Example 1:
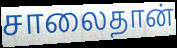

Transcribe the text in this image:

சாலைதான்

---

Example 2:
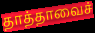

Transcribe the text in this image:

தாத்தாவைச்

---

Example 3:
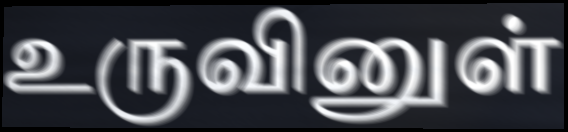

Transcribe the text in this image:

உருவினுள்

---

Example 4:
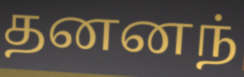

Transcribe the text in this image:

தனனந்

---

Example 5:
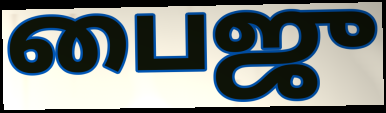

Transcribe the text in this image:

பைஜு